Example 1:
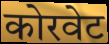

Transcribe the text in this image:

कोरवेट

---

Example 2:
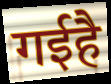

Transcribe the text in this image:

गईहै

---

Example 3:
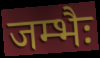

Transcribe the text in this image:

जम्भैः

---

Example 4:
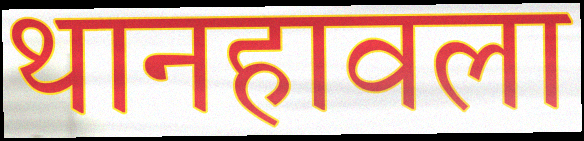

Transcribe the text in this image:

थानहावला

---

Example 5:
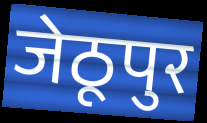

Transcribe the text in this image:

जेठूपुर